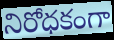
నిరోధకంగా